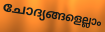
ചോദ്യങ്ങളെല്ലാം